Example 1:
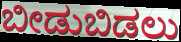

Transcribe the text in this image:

ಬೀಡುಬಿಡಲು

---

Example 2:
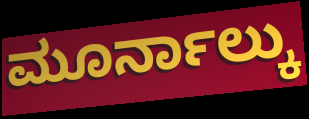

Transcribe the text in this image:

ಮೂರ್ನಾಲ್ಕು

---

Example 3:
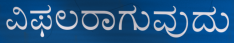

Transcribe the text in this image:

ವಿಫಲರಾಗುವುದು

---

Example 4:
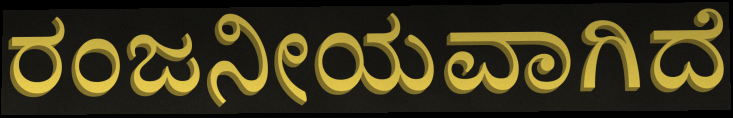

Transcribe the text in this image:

ರಂಜನೀಯವಾಗಿದೆ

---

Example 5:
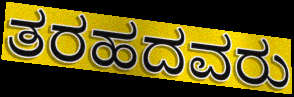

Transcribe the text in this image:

ತರಹದವರು